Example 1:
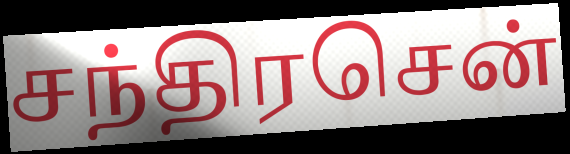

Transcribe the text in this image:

சந்திரசென்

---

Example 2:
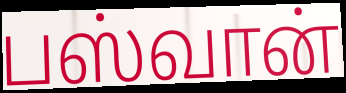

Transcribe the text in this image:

பஸ்வான்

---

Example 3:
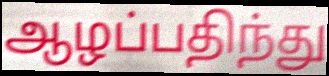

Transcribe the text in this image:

ஆழப்பதிந்து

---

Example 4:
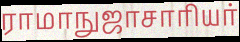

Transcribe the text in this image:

ராமாநுஜாசாரியர்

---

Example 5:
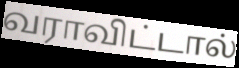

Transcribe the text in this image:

வராவிட்டால்